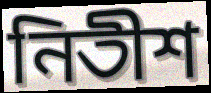
নিতীশ